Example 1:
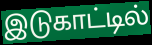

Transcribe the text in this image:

இடுகாட்டில்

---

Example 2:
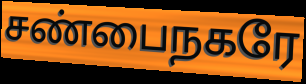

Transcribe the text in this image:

சண்பைநகரே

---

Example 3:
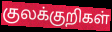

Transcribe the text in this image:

குலக்குறிகள்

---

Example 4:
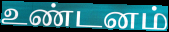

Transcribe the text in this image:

உண்டனம்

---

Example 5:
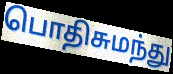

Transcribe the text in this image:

பொதிசுமந்து